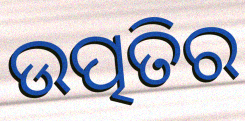
ଉତ୍ପତିର